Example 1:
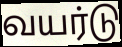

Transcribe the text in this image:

வயர்டு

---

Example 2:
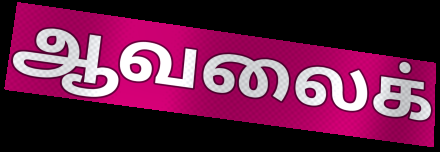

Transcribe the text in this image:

ஆவலைக்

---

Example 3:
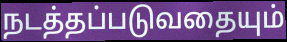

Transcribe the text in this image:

நடத்தப்படுவதையும்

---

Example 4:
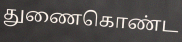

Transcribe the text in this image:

துணைகொண்ட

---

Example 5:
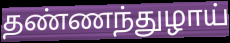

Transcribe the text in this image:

தண்ணந்துழாய்